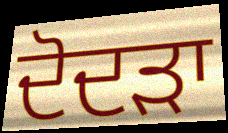
ਦੋਦੜਾ